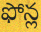
ఫోన్ల